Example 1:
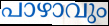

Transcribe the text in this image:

പാഴാവും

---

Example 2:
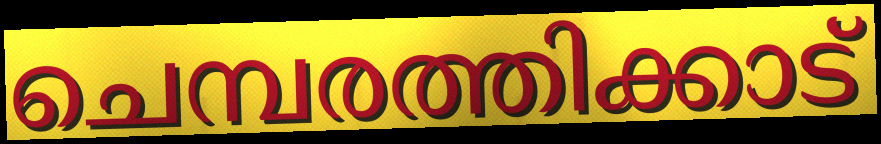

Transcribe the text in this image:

ചെമ്പരത്തിക്കാട്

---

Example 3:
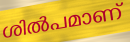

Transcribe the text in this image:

ശിൽപമാണ്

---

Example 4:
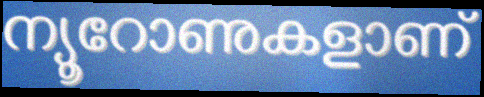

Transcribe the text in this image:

ന്യൂറോണുകളാണ്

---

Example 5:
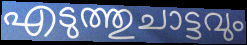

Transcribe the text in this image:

എടുത്തുചാട്ടവും